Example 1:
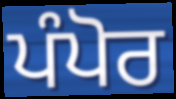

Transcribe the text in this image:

ਪੰਪੋਰ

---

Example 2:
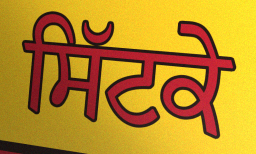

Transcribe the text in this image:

ਸਿੱਟਕੇ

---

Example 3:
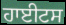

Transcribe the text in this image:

ਹਾਈਟਸ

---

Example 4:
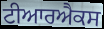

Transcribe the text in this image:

ਟੀਆਰਐਕਸ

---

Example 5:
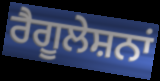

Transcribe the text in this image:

ਰੈਗੂਲੇਸ਼ਨਾਂ